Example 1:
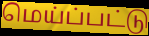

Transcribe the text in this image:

மெய்ப்பட்டு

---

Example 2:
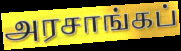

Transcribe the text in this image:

அரசாங்கப்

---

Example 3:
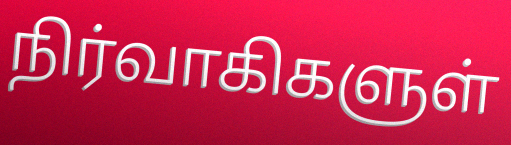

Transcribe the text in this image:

நிர்வாகிகளுள்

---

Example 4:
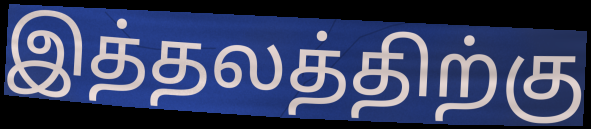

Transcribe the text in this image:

இத்தலத்திற்கு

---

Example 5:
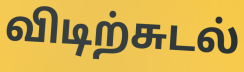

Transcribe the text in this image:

விடிற்சுடல்